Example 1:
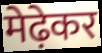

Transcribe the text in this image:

मेढ़ेकर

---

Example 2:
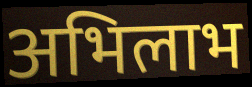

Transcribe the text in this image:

अभिलाभ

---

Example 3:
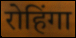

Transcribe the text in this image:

रोहिंगा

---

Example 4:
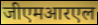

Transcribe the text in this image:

जीएमआरएल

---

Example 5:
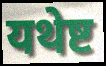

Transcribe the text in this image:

यथेष्ट